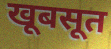
खूबसूत